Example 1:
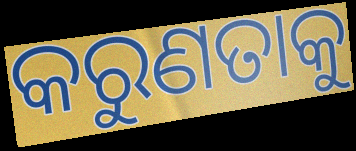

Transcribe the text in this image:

କରୁଣତାକୁ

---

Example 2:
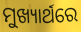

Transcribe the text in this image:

ମୁଖ୍ୟାର୍ଥରେ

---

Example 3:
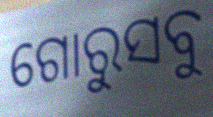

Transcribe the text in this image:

ଗୋରୁସବୁ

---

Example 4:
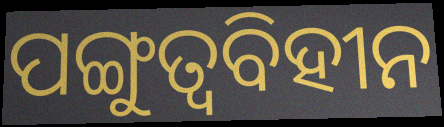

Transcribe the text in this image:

ପଙ୍ଗୁତ୍ୱବିହୀନ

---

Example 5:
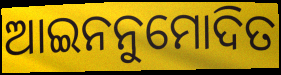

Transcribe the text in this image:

ଆଇନନୁମୋଦିତ